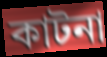
কাটনা